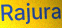
Rajura